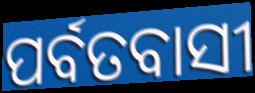
ପର୍ବତବାସୀ